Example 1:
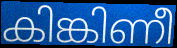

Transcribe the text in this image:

കിങ്കിണീ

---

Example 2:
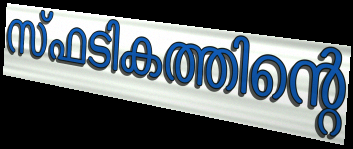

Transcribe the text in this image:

സ്ഫടികത്തിന്റെ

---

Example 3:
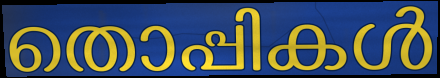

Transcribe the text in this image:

തൊപ്പികൾ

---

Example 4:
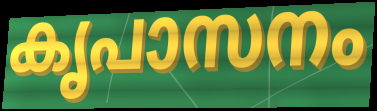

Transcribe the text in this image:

കൃപാസനം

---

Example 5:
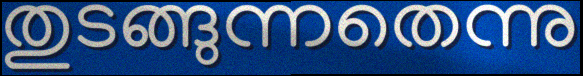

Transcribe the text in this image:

തുടങ്ങുന്നതെന്നു